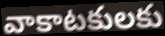
వాకాటకులకు